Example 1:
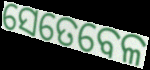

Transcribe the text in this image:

ସେତେବେଳ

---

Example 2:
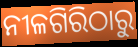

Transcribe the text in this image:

ନୀଳଗିରିଠାରୁ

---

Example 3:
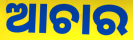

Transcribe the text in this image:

ଆଚାର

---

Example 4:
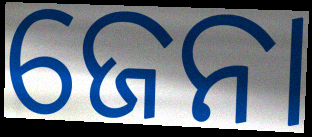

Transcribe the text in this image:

ଜେନା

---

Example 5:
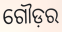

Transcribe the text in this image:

ଗୌଡ଼ର